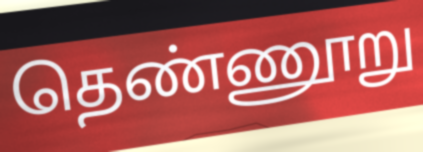
தெண்ணூறு